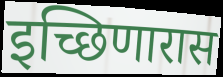
इच्छिणारास